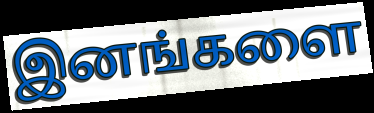
இனங்களை